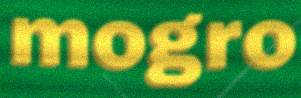
mogro